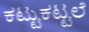
ಕಟ್ಟುಕಟ್ಟಲೆ